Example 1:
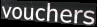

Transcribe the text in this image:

vouchers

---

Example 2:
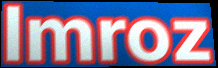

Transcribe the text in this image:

Imroz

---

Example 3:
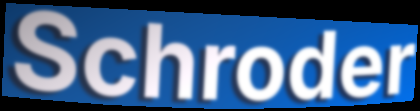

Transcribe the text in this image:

Schroder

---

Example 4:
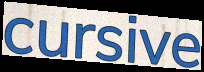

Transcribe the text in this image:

cursive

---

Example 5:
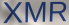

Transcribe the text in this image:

XMR